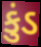
કુંડ